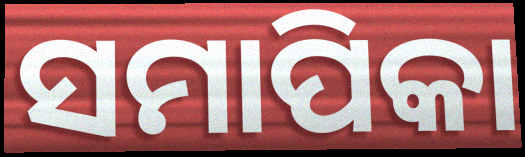
ସମାପିକା